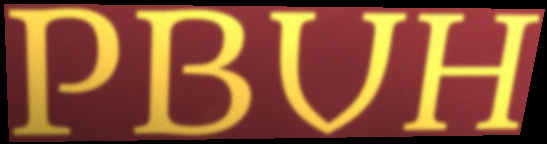
PBUH